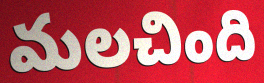
మలచింది